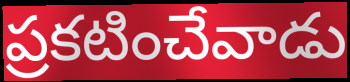
ప్రకటించేవాడు